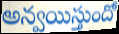
అన్వయిస్తుందో